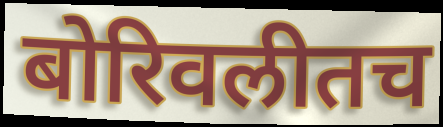
बोरिवलीतच